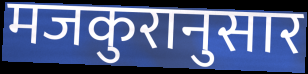
मजकुरानुसार